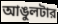
আঙুলটার